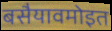
बसैयावमोइत